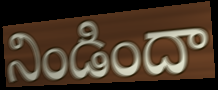
నిండిందా